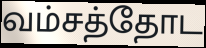
வம்சத்தோட